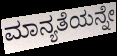
ಮಾನ್ಯತೆಯನ್ನೇ